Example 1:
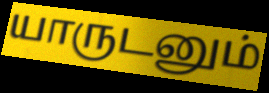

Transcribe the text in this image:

யாருடனும்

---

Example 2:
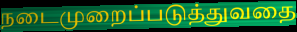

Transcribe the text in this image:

நடைமுறைப்படுத்துவதை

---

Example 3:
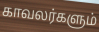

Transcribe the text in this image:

காவலர்களும்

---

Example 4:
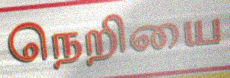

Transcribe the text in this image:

நெறியை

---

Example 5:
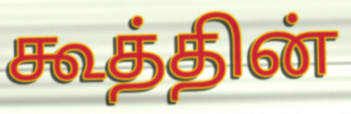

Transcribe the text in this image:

கூத்தின்